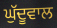
ਘੁੱਦੂਵਾਲ